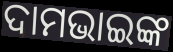
ଦାମଭାଇଙ୍କ